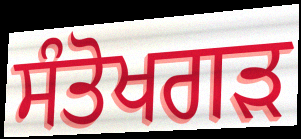
ਸੰਤੋਖਗੜ